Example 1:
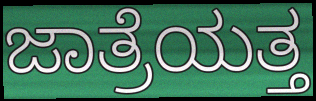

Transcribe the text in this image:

ಜಾತ್ರೆಯತ್ತ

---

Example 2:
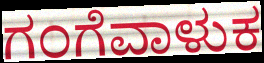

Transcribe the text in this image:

ಗಂಗೆವಾಳುಕ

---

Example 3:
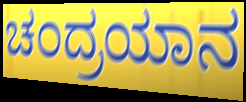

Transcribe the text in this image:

ಚಂದ್ರಯಾನ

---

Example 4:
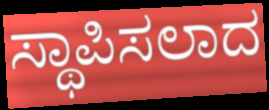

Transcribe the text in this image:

ಸ್ಥಾಪಿಸಲಾದ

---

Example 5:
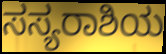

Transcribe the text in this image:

ಸಸ್ಯರಾಶಿಯ